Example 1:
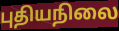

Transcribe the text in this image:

புதியநிலை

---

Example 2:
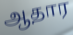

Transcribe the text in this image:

ஆதார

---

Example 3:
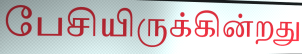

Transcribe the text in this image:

பேசியிருக்கின்றது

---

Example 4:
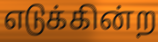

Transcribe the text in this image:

எடுக்கின்ற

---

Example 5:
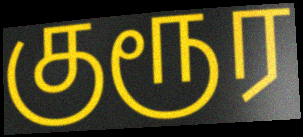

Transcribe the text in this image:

குரூர